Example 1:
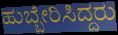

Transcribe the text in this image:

ಹುಬ್ಬೇರಿಸಿದ್ದರು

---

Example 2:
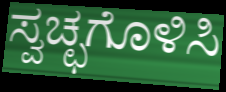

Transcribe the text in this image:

ಸ್ವಚ್ಛಗೊಳಿಸಿ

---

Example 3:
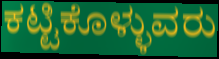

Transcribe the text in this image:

ಕಟ್ಟಿಕೊಳ್ಳುವರು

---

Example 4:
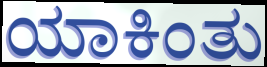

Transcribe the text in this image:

ಯಾಕಿಂತು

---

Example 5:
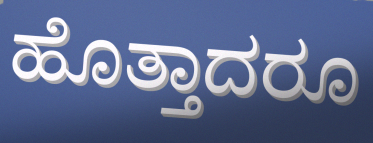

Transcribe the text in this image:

ಹೊತ್ತಾದರೂ